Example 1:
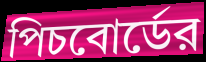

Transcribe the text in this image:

পিচবোর্ডের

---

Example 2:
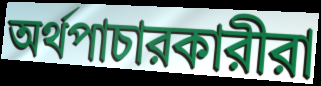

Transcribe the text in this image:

অর্থপাচারকারীরা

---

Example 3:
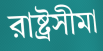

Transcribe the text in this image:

রাষ্ট্রসীমা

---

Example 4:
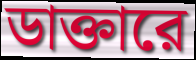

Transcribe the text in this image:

ডাক্তারে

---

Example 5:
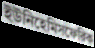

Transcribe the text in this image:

ইউনিহেমিসফেরিক